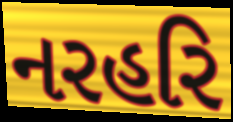
નરહરિ